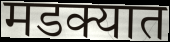
मडक्यात